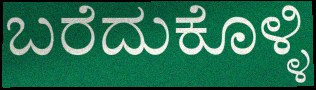
ಬರೆದುಕೊಳ್ಳಿ